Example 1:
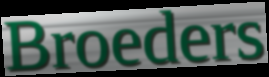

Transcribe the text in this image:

Broeders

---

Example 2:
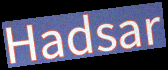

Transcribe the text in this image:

Hadsar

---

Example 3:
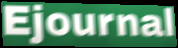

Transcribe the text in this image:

Ejournal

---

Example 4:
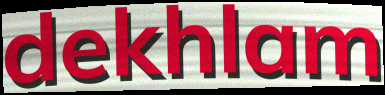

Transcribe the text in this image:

dekhlam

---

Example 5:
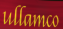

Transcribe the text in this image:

ullamco